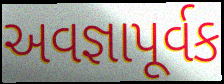
અવજ્ઞાપૂર્વક